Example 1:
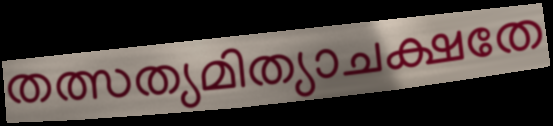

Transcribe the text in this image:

തത്സത്യമിത്യാചക്ഷതേ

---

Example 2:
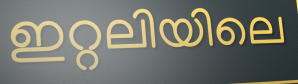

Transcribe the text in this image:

ഇറ്റലിയിലെ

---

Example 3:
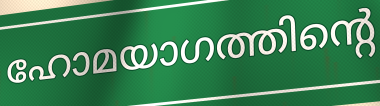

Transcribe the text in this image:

ഹോമയാഗത്തിന്റെ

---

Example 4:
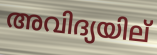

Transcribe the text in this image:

അവിദ്യയില്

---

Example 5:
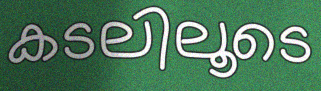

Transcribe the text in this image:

കടലിലൂടെ